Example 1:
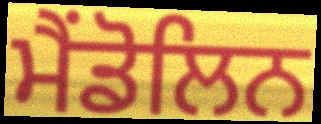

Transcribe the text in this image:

ਮੈਂਡੋਲਿਨ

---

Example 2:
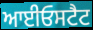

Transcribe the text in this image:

ਆਈਓਸਟੈਟ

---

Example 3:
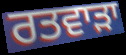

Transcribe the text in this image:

ਰਤਵਾੜਾ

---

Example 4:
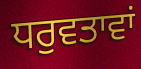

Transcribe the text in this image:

ਧਰੁਵਤਾਵਾਂ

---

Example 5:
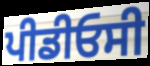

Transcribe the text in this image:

ਪੀਡੀਓਸੀ